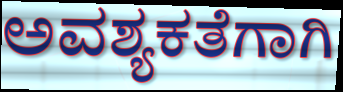
ಅವಶ್ಯಕತೆಗಾಗಿ